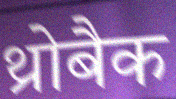
थ्रोबैक